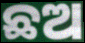
ଛଅ